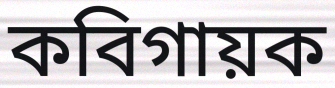
কবিগায়ক